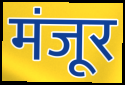
मंजूर